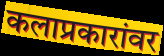
कलाप्रकारांवर